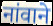
नांवाने